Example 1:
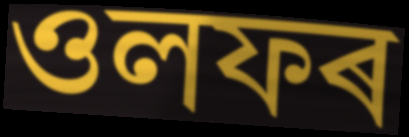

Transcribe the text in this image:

ওলফৰ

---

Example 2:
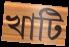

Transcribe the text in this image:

খাটি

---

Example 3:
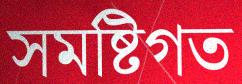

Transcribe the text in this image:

সমষ্টিগত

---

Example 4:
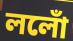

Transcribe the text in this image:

ললোঁ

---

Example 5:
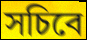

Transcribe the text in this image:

সচিবে